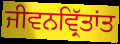
ਜੀਵਨਵ੍ਰਿੱਤਾਂਤ